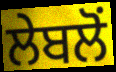
ਲੇਬਲੋਂ